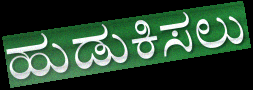
ಹುಡುಕಿಸಲು